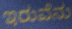
ಇರುವೆನು